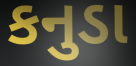
કનુડા